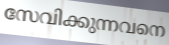
സേവിക്കുന്നവനെ